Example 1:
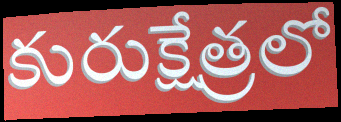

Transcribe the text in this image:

కురుక్షేత్రలో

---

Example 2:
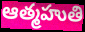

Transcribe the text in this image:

ఆత్మహుతి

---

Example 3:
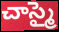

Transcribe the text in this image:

చాస్మై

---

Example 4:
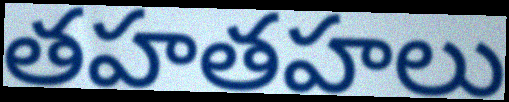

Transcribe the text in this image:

తహతహలు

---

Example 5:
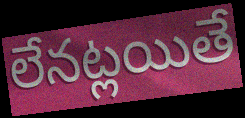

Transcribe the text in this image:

లేనట్లయితే